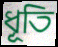
ধূতি